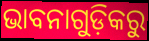
ଭାବନାଗୁଡ଼ିକରୁ